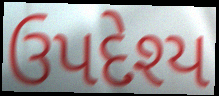
ઉપદેશ્ય